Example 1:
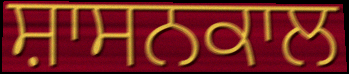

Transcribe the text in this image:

ਸ਼ਾਸਨਕਾਲ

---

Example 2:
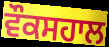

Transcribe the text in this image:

ਵੌਕਸਹਾਲ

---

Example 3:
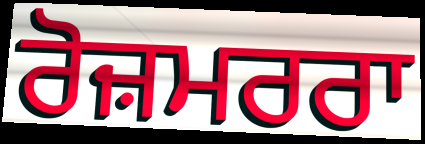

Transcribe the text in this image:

ਰੋਜ਼ਮਰਰਾ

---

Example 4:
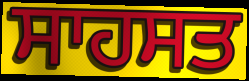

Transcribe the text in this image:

ਸਾਹਸਤ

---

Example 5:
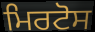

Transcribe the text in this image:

ਮਿਰਟੋਸ